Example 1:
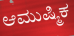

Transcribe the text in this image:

ಆಮುಷ್ಮಿಕ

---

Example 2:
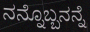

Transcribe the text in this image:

ನನ್ನೊಬ್ಬನನ್ನೆ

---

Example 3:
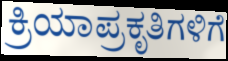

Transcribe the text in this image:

ಕ್ರಿಯಾಪ್ರಕೃತಿಗಳಿಗೆ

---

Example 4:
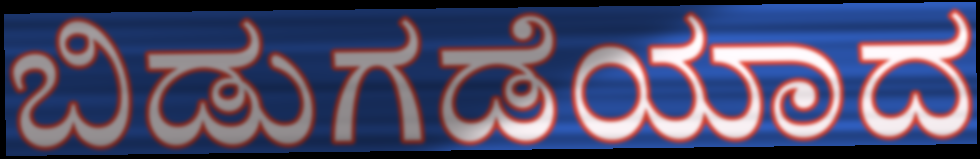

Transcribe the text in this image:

ಬಿಡುಗಡೆಯಾದ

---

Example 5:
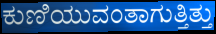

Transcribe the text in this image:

ಕುಣಿಯುವಂತಾಗುತ್ತಿತ್ತು